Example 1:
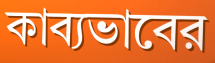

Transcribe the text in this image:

কাব্যভাবের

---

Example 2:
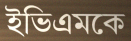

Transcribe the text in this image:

ইভিএমকে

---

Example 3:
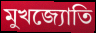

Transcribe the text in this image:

মুখজ্যোতি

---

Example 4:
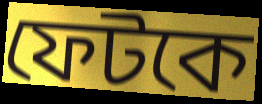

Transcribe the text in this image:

ফেটকে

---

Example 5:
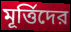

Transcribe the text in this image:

মূর্ত্তিদের